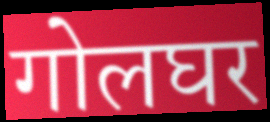
गोलघर